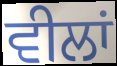
ਵੀਲਾਂ